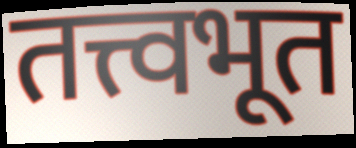
तत्त्वभूत